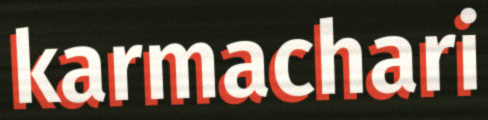
karmachari